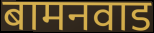
बामनवाड